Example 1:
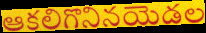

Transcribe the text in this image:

ఆకలిగొనినయెడల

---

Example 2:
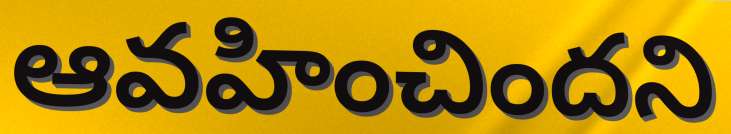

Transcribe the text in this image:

ఆవహించిందని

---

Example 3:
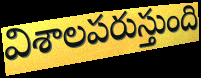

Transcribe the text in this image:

విశాలపరుస్తుంది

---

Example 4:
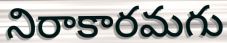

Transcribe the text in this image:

నిరాకారమగు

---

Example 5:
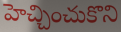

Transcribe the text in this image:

హెచ్చించుకొని